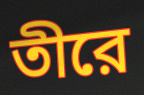
তীরে